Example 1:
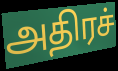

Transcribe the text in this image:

அதிரச்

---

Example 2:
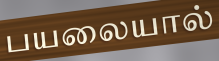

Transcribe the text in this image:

பயலையால்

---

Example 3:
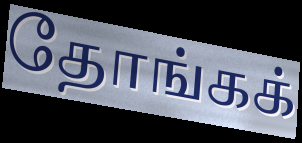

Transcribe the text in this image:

தோங்கக்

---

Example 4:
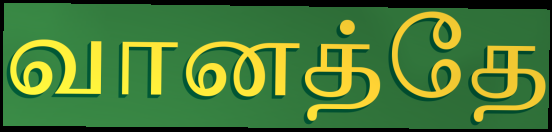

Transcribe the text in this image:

வானத்தே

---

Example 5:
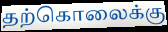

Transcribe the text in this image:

தற்கொலைக்கு